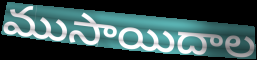
ముసాయిదాల